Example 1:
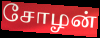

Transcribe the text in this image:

சோழன்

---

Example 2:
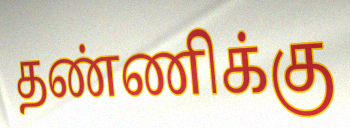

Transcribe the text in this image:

தண்ணிக்கு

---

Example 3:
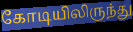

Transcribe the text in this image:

கோடியிலிருந்து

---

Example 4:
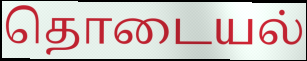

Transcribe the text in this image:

தொடையல்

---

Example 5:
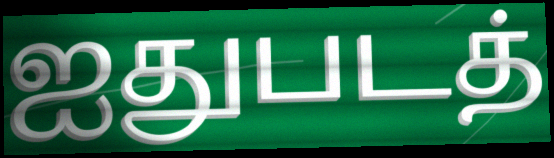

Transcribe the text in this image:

ஐதுபடத்